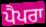
ਪੈਪਰਾ